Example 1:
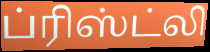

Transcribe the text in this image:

ப்ரிஸ்ட்லி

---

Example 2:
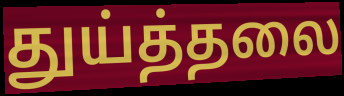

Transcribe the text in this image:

துய்த்தலை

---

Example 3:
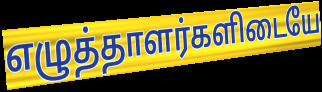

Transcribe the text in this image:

எழுத்தாளர்களிடையே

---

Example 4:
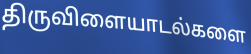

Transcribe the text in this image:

திருவிளையாடல்களை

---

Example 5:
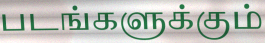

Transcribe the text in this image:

படங்களுக்கும்